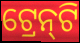
ଟ୍ରେନ୍‌ଟି